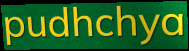
pudhchya